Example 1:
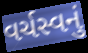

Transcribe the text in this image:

વર્ચસ્વનું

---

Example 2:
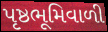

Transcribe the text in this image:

પૃષ્ઠભૂમિવાળી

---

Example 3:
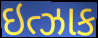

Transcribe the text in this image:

ઇત્ઝાક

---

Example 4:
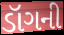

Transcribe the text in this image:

ડૉગની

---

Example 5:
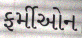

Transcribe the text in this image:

ફર્મીઓન